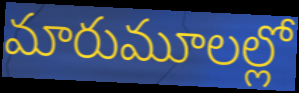
మారుమూలల్లో